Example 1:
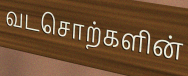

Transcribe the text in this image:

வடசொற்களின்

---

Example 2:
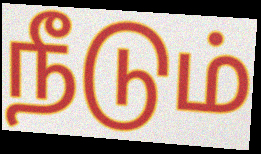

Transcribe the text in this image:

நீடும்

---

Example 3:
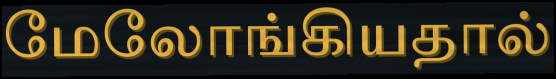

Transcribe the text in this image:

மேலோங்கியதால்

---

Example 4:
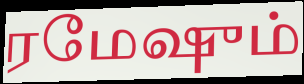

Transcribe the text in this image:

ரமேஷும்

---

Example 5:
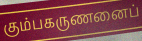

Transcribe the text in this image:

கும்பகருணனைப்